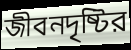
জীবনদৃষ্টির